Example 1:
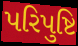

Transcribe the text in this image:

પરિપુષ્ટિ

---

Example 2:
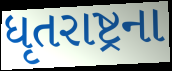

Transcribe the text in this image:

ધૃતરાષ્ટ્રના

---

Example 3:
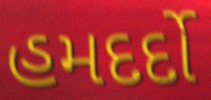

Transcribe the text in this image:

હમદર્દો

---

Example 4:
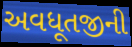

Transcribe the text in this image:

અવધૂતજીની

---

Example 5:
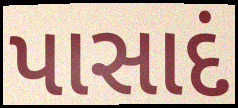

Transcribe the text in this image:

પાસાદં